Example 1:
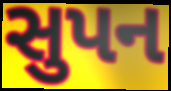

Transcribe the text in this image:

સુપન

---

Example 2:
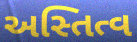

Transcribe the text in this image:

અસ્તિત્વ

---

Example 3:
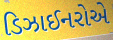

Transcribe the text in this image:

ડિઝાઈનરોએ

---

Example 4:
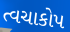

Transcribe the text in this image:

ત્વચાકોપ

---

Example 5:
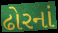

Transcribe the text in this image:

ઢોરનાં